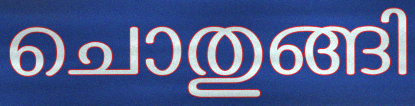
ചൊതുങ്ങി